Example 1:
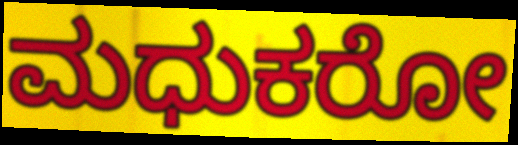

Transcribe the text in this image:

ಮಧುಕರೋ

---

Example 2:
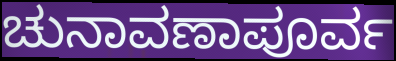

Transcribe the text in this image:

ಚುನಾವಣಾಪೂರ್ವ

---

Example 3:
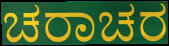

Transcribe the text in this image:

ಚರಾಚರ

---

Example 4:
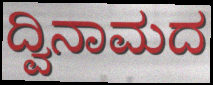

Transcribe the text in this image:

ದ್ವಿನಾಮದ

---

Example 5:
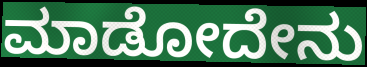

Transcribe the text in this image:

ಮಾಡೋದೇನು